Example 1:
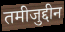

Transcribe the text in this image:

तमीजुद्दीन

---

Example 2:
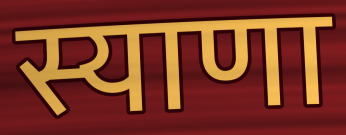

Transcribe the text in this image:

स्याणा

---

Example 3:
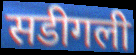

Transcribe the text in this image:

सडीगली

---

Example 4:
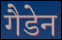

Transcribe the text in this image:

गैडेन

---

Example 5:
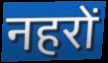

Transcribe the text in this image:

नहरों